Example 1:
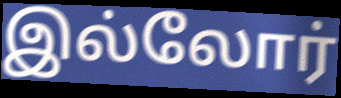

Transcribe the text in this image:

இல்லோர்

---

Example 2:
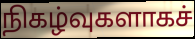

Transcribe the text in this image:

நிகழ்வுகளாகச்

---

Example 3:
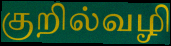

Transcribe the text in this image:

குறில்வழி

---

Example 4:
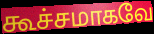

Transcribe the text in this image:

கூச்சமாகவே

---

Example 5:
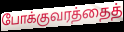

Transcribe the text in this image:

போக்குவரத்தைத்